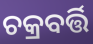
ଚକ୍ରବର୍ତ୍ତି